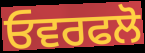
ਓਵਰਫਲੋ